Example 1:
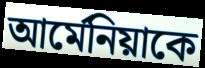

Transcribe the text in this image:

আর্মেনিয়াকে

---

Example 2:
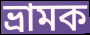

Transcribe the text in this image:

ভ্রামক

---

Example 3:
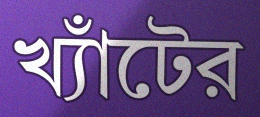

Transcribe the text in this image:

খ্যাঁটের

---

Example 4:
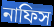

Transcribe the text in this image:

নাফিস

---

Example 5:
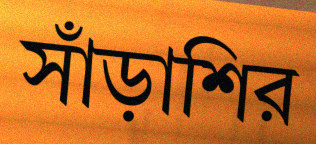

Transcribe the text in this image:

সাঁড়াশির